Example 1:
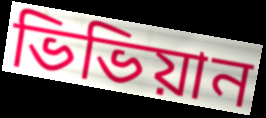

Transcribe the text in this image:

ভিভিয়ান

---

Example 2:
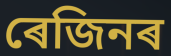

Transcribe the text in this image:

ৰেজিনৰ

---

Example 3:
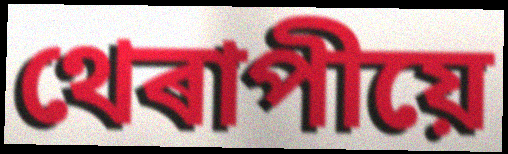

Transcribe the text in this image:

থেৰাপীয়ে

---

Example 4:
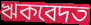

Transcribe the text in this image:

ঋকবেদত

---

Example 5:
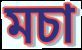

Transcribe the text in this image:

মচা